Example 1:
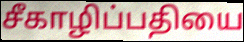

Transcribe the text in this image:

சீகாழிப்பதியை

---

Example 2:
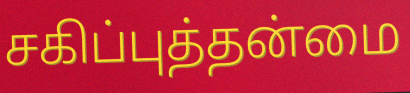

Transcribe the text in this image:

சகிப்புத்தன்மை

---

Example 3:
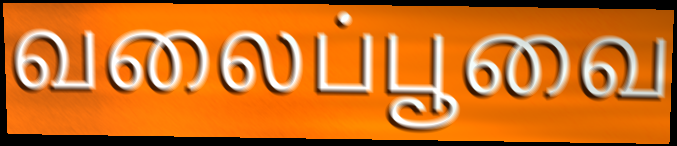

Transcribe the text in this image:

வலைப்பூவை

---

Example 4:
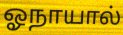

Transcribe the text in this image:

ஓநாயால்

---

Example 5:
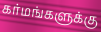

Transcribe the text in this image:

கர்மங்களுக்கு